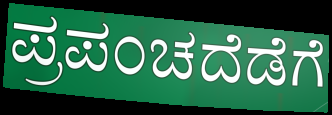
ಪ್ರಪಂಚದೆಡೆಗೆ